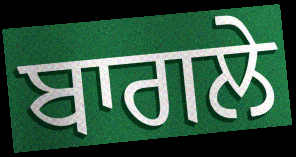
ਬਾਗਲੇ